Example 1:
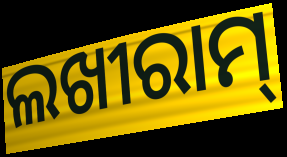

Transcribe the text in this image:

ଲଖୀରାମ୍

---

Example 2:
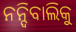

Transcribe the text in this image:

ନନ୍ଦିବାଲିକୁ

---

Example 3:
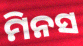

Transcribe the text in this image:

ମିନସ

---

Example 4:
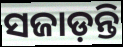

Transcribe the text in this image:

ସଜାଡ଼ନ୍ତି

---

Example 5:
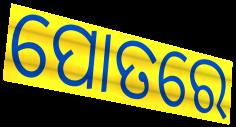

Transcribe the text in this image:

ପୋତରେ